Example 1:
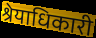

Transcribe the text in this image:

श्रेयाधिकारी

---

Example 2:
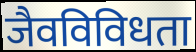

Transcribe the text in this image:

जैवविविधता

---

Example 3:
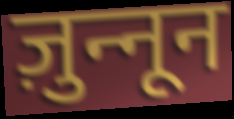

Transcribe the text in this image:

ज़ुन्नून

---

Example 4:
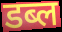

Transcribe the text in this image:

डब्ल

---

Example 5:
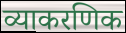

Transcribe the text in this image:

व्याकरणिक